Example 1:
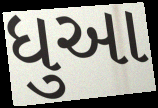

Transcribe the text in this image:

ધુઆ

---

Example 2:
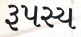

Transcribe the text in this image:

રૂપસ્ય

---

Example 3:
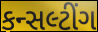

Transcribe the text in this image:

કન્સલ્ટીંગ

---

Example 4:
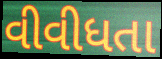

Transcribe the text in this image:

વીવીધતા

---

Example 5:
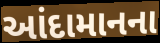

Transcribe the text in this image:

આંદામાનના